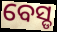
ବେସ୍ଡ